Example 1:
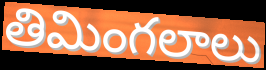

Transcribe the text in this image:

తిమింగలాలు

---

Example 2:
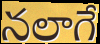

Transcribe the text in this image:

నలాగే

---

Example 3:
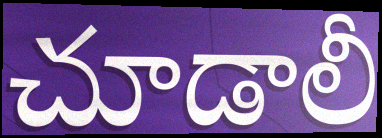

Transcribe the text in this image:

చూడాలీ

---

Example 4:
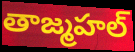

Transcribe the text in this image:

తాజ్మహల్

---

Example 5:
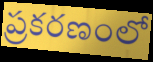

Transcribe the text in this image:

ప్రకరణంలో